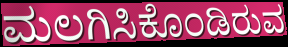
ಮಲಗಿಸಿಕೊಂಡಿರುವ